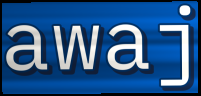
awaj